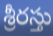
శ్రీరస్తు